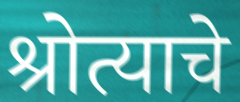
श्रोत्याचे